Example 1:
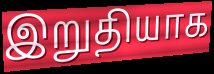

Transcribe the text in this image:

இறுதியாக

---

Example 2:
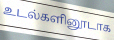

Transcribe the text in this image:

உடல்களினூடாக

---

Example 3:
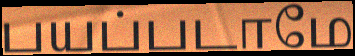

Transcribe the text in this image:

பயப்படாமே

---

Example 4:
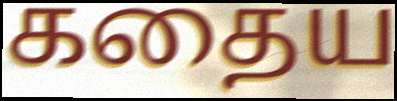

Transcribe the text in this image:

கதைய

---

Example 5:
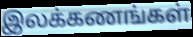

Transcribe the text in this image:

இலக்கணங்கள்